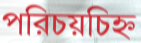
পরিচয়চিহ্ন